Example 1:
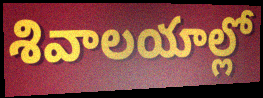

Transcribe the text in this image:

శివాలయాల్లో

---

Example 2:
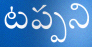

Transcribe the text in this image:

టప్పని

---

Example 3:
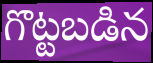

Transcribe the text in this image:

గొట్టబడిన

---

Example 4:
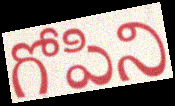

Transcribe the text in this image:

గోపిని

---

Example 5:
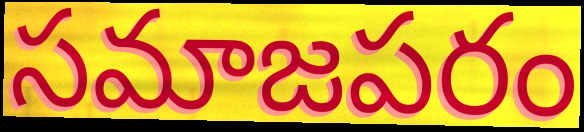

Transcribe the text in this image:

సమాజపరం